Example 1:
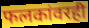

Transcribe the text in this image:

फलकांवरही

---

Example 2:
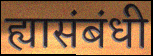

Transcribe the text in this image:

ह्यासंबंधी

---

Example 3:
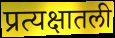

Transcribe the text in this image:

प्रत्यक्षातली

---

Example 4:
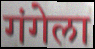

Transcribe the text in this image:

गंगेला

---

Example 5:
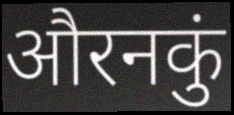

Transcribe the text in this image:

औरनकुं